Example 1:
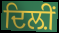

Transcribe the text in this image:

ਦਿਲ਼ੀਂ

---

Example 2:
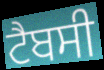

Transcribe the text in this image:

ਟੈਬਸੀ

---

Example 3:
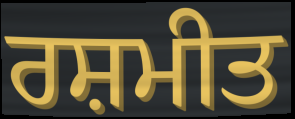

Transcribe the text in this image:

ਰਸ਼ਮੀਤ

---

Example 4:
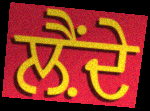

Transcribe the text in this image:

ਲ਼ੈਂਦੇ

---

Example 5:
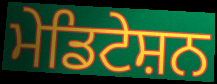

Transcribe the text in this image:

ਮੇਡਿਟੇਸ਼ਨ